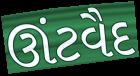
ઊંટવૈદ